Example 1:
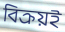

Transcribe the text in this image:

বিক্রয়ই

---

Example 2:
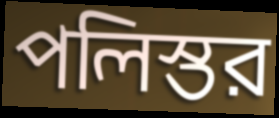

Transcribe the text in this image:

পলিস্তর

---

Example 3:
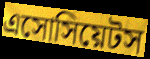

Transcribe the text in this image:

এসোসিয়েটস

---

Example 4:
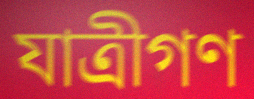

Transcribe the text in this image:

যাত্রীগণ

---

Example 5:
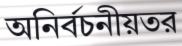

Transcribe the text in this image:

অনির্বচনীয়তর